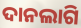
ଦାନଲାଗି